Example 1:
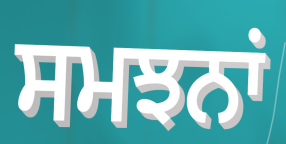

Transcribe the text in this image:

ਸਮਝਨਾਂ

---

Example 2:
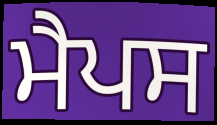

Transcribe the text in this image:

ਮੈਪਸ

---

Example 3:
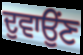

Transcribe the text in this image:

ਦੁਵਾਉਂਣ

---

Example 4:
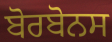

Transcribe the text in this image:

ਬੋਰਬੋਨਸ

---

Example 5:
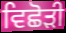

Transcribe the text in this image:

ਵਿਛੋੜੀ